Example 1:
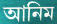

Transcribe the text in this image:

আনিম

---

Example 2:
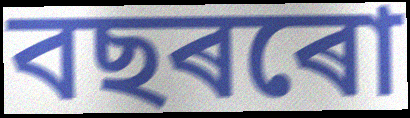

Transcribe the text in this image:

বছৰৰো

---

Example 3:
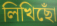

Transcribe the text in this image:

লিখিছোঁ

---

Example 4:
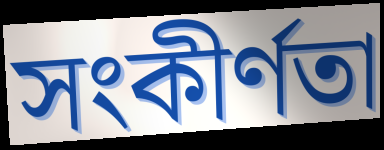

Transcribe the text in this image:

সংকীৰ্ণতা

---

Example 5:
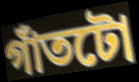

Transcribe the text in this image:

গাঁতটো